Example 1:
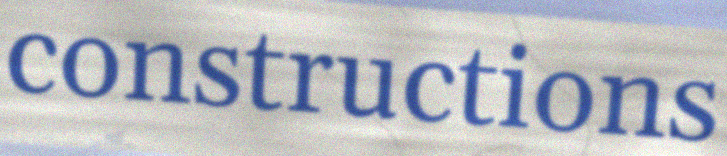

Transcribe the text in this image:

constructions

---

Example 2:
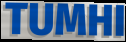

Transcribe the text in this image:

TUMHI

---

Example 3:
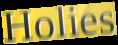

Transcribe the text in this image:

Holies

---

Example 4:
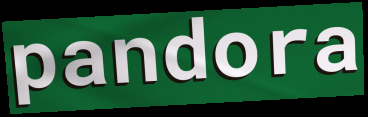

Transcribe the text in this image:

pandora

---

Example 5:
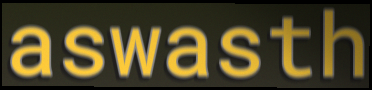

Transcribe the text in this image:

aswasth